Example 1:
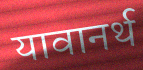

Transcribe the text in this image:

यावानर्थ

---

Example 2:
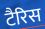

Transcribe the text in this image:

टैरिस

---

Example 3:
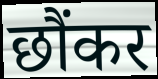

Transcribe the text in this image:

छौंकर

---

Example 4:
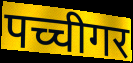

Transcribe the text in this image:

पच्चीगर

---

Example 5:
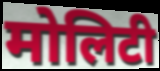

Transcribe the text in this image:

मोलिटी